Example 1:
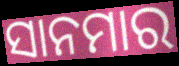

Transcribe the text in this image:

ସାନମାର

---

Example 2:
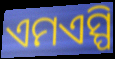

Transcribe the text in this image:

ଏମଏସ୍ପି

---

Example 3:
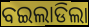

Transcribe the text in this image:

ବଇଲାଡିଲା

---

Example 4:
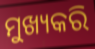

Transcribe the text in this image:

ମୁଖ୍ୟକରି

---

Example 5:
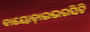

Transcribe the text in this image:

ବାୟୋଡ଼ାଇଭରସିଟି